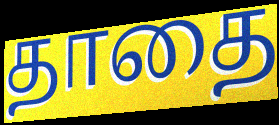
தாதை